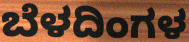
ಬೆಳದಿಂಗಳ